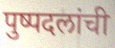
पुष्पदलांची